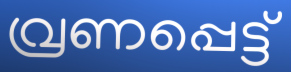
വ്രണപ്പെട്ട്